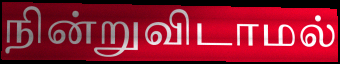
நின்றுவிடாமல்